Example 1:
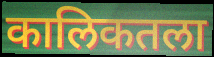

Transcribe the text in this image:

कालिकतला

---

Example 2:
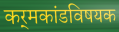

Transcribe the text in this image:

कर्मकांडविषयक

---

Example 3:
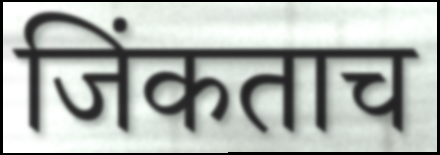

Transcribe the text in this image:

जिंकताच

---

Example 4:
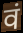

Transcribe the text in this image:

वं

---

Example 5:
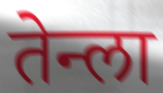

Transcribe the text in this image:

तेन्ला